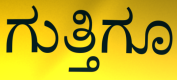
ಗುತ್ತಿಗೂ